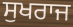
ਸੁਖਰਾਜ